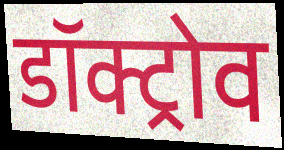
डॉक्ट्रोव